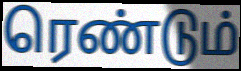
ரெண்டும்